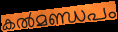
കൽമണ്ഡപം